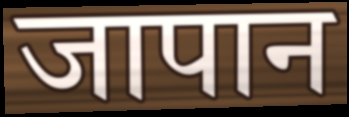
जापान